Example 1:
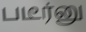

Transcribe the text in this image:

படீர்னு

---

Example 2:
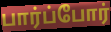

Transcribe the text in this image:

பார்ப்போர்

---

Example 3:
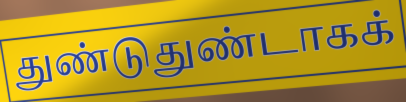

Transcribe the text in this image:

துண்டுதுண்டாகக்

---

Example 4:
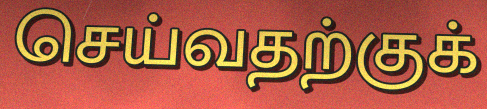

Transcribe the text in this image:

செய்வதற்குக்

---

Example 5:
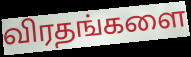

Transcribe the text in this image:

விரதங்களை